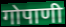
गोपाणी